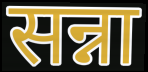
सन्ना